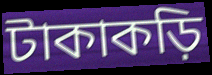
টাকাকড়ি